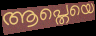
ആപ്തെയെ